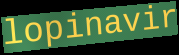
lopinavir